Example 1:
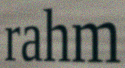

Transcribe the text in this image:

rahm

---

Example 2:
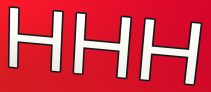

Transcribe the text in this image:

HHH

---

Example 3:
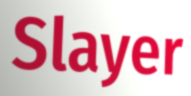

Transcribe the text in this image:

Slayer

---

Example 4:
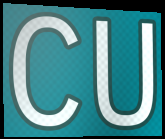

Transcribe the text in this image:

CU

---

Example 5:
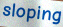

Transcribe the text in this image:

sloping